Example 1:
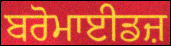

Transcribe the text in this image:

ਬਰੋਮਾਈਡਜ਼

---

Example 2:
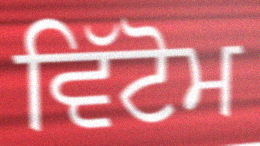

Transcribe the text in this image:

ਵਿੱਟੋਮ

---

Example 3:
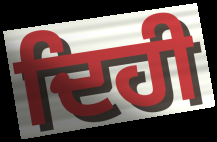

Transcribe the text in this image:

ਦਿਹੀ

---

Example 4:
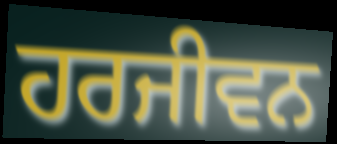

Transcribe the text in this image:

ਹਰਜੀਵਨ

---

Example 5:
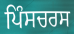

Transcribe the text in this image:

ਪਿੰਸਚਰਸ